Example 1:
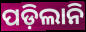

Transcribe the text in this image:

ପଡ଼ିଲାନି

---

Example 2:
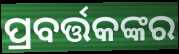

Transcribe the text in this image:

ପ୍ରବର୍ତ୍ତକଙ୍କର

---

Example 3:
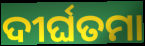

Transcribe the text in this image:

ଦୀର୍ଘତମା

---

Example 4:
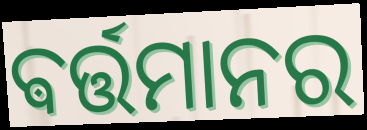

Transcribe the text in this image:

ଵର୍ତ୍ତମାନର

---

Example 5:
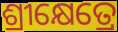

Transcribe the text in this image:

ଶ୍ରୀକ୍ଷେତ୍ରେ